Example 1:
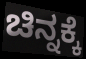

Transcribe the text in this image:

ಚಿನ್ನಕ್ಕೆ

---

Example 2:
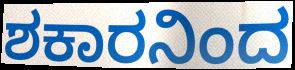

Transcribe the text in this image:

ಶಕಾರನಿಂದ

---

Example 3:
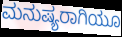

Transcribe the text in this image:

ಮನುಷ್ಯರಾಗಿಯೂ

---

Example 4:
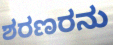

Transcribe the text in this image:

ಶರಣರನು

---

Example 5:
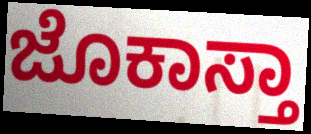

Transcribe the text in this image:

ಜೊಕಾಸ್ತಾ